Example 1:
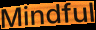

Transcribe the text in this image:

Mindful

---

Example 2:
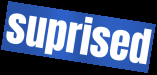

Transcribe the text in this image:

suprised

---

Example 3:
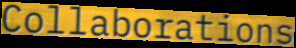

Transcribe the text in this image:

Collaborations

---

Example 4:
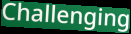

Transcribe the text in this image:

Challenging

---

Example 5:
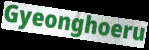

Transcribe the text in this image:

Gyeonghoeru